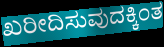
ಖರೀದಿಸುವುದಕ್ಕಿಂತ